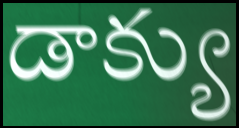
డాక్యు